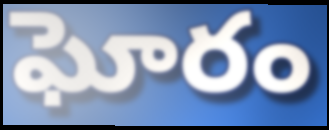
ఘోరం